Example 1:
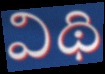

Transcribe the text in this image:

విథి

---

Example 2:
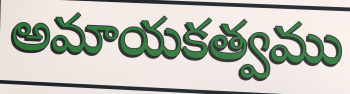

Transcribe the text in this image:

అమాయకత్వము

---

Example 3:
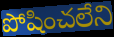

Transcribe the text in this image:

పోషించలేని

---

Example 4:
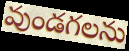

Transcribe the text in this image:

వుండగలను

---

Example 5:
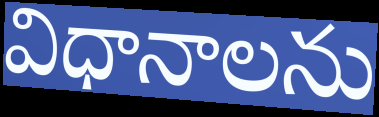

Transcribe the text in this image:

విధానాలను